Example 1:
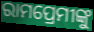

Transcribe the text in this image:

ରାମପ୍ରେମୀଙ୍କୁ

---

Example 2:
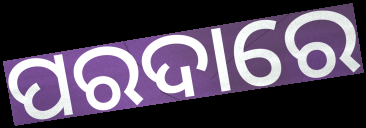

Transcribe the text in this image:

ପରଦାରେ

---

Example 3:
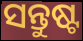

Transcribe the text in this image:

ସନ୍ତୁଷ୍ଟ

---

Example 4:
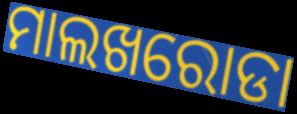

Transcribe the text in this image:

ମାଲଖରୋଡା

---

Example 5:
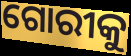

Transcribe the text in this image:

ଗୋରୀକୁ